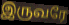
இருவரே